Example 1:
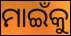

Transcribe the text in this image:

ମାଇଁକୁ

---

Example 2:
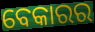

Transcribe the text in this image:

ବେକାରର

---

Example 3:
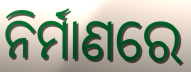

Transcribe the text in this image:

ନିର୍ମାଣରେ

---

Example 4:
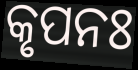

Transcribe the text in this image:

କୃପନଃ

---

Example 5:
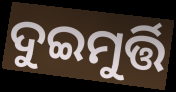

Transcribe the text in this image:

ଦୁଇମୁର୍ତ୍ତି